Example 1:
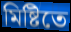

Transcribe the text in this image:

মিষ্টিতে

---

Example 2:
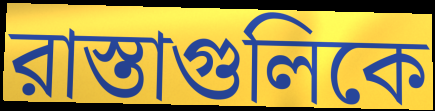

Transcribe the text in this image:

রাস্তাগুলিকে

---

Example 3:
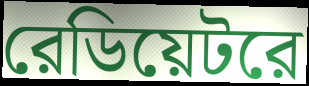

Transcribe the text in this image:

রেডিয়েটরে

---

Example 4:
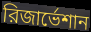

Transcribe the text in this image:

রিজার্ভেশান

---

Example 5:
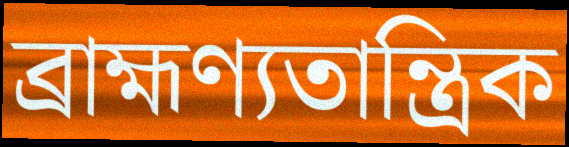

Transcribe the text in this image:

ব্রাহ্মণ্যতান্ত্রিক